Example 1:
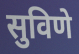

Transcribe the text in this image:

सुविणे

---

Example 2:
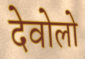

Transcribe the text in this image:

देवोलो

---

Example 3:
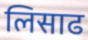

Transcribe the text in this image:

लिसाढ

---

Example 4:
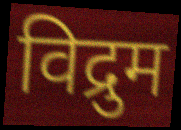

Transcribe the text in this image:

विद्रुम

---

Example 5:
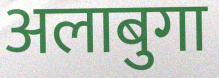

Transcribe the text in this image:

अलाबुगा